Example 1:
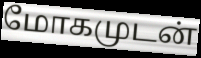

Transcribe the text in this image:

மோகமுடன்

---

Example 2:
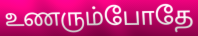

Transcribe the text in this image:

உணரும்போதே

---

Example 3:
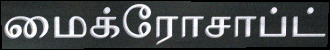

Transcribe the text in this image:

மைக்ரோசாப்ட்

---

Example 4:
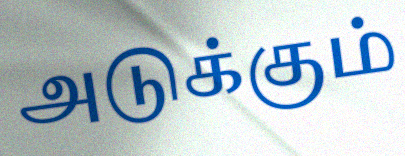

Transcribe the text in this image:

அடுக்கும்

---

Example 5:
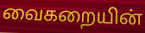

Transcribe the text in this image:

வைகறையின்